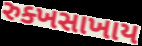
રુક્ખસાખાય